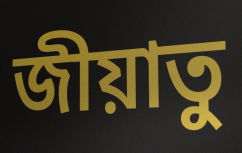
জীয়াতু